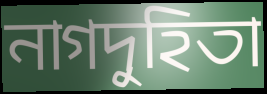
নাগদুহিতা